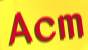
Acm